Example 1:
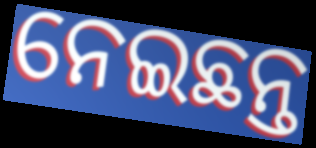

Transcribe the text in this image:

ନେଇଛନ୍ତ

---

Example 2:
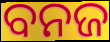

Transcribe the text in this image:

ବନଜ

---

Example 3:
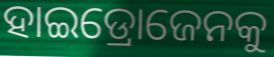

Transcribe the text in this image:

ହାଇଡ୍ରୋଜେନକୁ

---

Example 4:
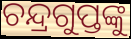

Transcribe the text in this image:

ଚନ୍ଦ୍ରଗୁପ୍ତଙ୍କୁ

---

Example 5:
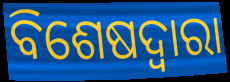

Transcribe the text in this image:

ବିଶେଷଦ୍ଵାରା